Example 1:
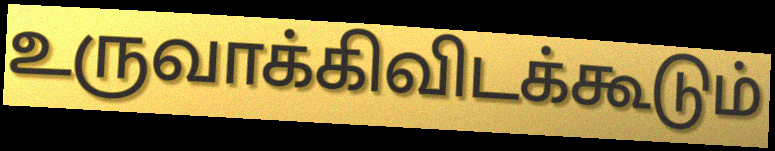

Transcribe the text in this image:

உருவாக்கிவிடக்கூடும்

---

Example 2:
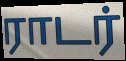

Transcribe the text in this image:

ராடர்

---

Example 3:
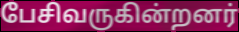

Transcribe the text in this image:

பேசிவருகின்றனர்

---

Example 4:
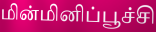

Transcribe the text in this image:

மின்மினிப்பூச்சி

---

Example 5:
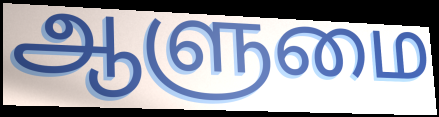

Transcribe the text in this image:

ஆளுமை